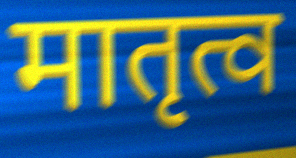
मातृत्व